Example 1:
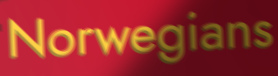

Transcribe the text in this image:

Norwegians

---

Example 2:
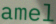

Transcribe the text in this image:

amel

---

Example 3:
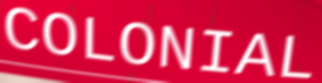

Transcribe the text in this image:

COLONIAL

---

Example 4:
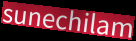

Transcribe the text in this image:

sunechilam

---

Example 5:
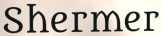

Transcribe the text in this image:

Shermer